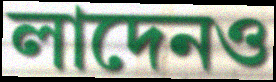
লাদেনও